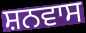
ਸ਼ਨਵਾਸ